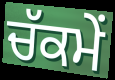
ਚੱਕਮੇਂ